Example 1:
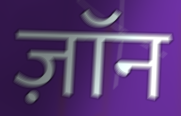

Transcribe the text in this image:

ज़ॉन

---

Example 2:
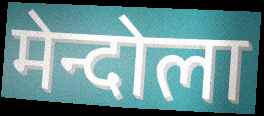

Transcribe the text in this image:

मेन्दोला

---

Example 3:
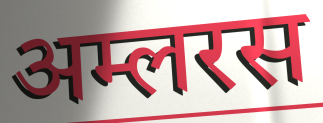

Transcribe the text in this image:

अम्लरस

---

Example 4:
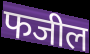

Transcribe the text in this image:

फजील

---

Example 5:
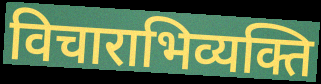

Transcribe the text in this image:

विचाराभिव्यक्ति